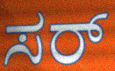
ಸರ್